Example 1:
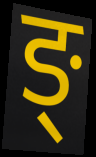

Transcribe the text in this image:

ङ्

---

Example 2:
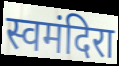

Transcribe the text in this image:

स्वमंदिरा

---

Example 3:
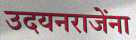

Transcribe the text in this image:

उदयनराजेंना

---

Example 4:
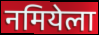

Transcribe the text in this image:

नमियेला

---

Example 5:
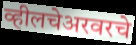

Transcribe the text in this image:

व्हीलचेअरवरचे